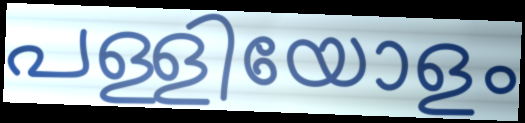
പള്ളിയോളം